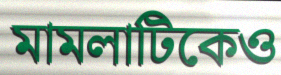
মামলাটিকেও